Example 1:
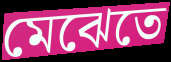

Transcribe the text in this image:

মেঝেতে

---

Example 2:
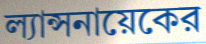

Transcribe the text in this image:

ল্যান্সনায়েকের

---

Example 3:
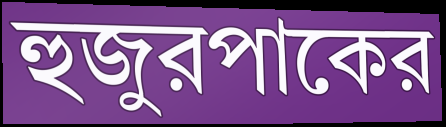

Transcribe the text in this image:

হুজুরপাকের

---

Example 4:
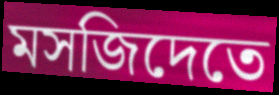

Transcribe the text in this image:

মসজিদেতে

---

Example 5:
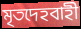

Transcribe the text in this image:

মৃতদেহবাহী